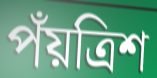
পঁয়ত্রিশ